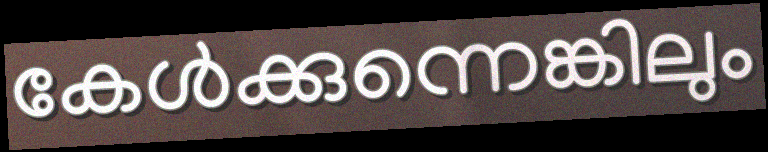
കേൾക്കുന്നെങ്കിലും